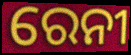
ରେନୀ